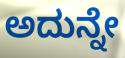
ಅದುನ್ನೇ